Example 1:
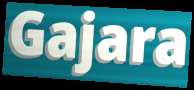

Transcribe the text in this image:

Gajara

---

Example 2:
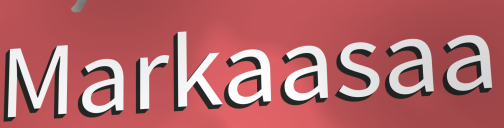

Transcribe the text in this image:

Markaasaa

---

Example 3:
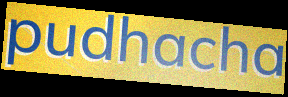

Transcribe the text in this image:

pudhacha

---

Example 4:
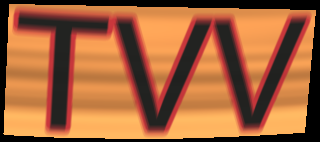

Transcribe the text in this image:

TVV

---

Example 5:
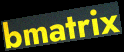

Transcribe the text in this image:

bmatrix